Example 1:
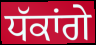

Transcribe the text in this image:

ਧੱਕਾਂਗੇ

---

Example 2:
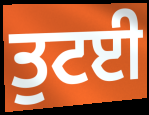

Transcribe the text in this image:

ਤੁਟਈ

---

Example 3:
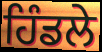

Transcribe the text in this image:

ਹਿੰਡਲੇ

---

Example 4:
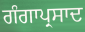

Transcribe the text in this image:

ਗੰਗਾਪ੍ਰਸਾਦ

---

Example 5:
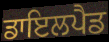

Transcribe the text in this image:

ਡਾਇਲਪੈਡ